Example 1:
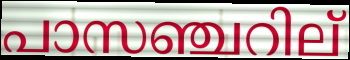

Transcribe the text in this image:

പാസഞ്ചറില്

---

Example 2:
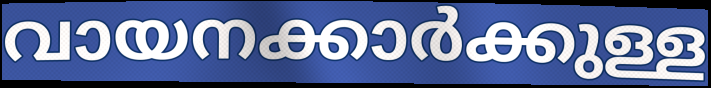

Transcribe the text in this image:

വായനക്കാർക്കുള്ള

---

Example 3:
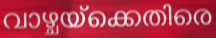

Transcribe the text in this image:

വാഴ്ചയ്‌ക്കെതിരെ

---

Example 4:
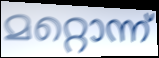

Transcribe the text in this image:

മറ്റൊന്ന്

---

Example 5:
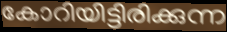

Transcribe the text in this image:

കോറിയിട്ടിരിക്കുന്ന